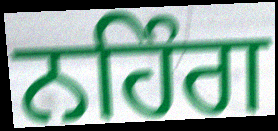
ਨਹਿੰਗ